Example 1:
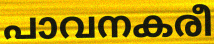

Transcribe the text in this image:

പാവനകരീ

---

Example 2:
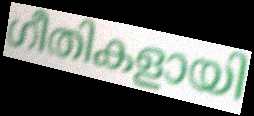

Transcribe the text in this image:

ഗീതികളായി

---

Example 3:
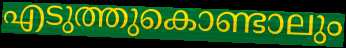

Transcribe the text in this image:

എടുത്തുകൊണ്ടാലും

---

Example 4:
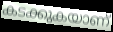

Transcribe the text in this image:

കടക്കുകയാണ്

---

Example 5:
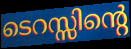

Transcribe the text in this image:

ടെറസ്സിന്റെ